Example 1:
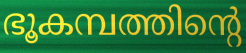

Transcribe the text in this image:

ഭൂകമ്പത്തിന്റെ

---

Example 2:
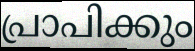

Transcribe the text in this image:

പ്രാപിക്കും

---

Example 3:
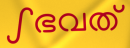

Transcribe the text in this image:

ഽഭവത്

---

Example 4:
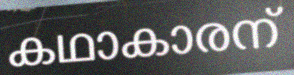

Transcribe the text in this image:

കഥാകാരന്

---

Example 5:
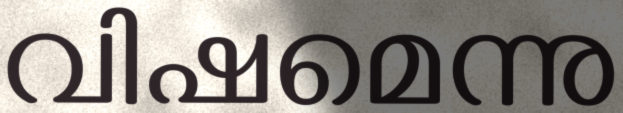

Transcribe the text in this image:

വിഷമെന്നു